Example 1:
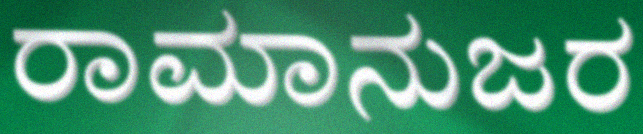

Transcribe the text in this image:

ರಾಮಾನುಜರ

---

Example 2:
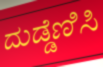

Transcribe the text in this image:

ದುಡ್ಡೆಣಿಸಿ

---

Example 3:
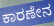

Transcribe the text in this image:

ಕಾರಣೇನ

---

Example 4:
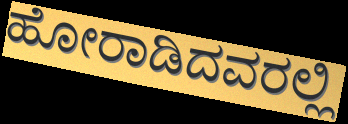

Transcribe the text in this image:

ಹೋರಾಡಿದವರಲ್ಲಿ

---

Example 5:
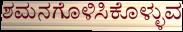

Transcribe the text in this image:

ಶಮನಗೊಳಿಸಿಕೊಳ್ಳುವ